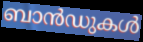
ബാൻഡുകൾ